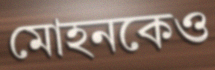
মোহনকেও